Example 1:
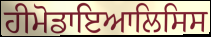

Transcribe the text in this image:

ਹੀਮੋਡਾਇਆਲਿਸਿਸ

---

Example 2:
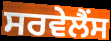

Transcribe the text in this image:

ਸਰਵੇਲੈਂਸ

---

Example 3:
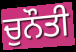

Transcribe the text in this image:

ਚੁਨੌਤੀ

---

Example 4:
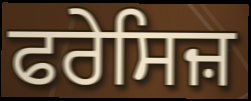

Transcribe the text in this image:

ਫਰੇਸਿਜ਼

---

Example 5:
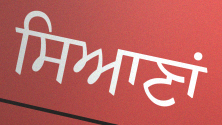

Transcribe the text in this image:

ਸਿਆਣਾਂ